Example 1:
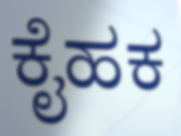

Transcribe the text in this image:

ಕೈಹಕ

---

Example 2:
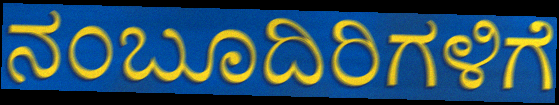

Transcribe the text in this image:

ನಂಬೂದಿರಿಗಳಿಗೆ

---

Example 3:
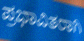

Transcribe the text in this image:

ಪ್ರಭಾವಿತರಾಗಿ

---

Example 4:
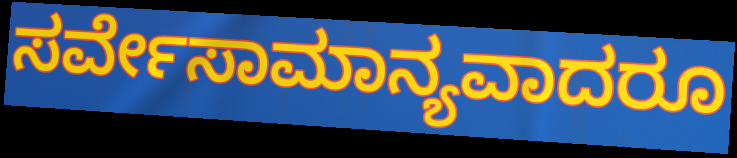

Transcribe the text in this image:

ಸರ್ವೇಸಾಮಾನ್ಯವಾದರೂ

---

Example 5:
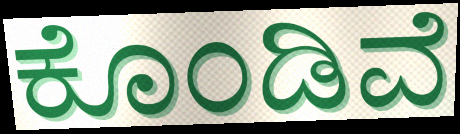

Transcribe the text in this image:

ಕೊಂಡಿವೆ